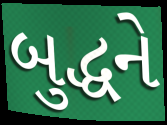
બુદ્ધને